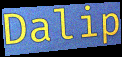
Dalip